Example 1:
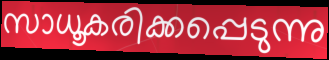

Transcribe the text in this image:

സാധൂകരിക്കപ്പെടുന്നു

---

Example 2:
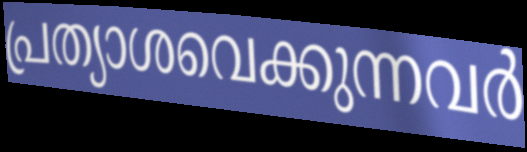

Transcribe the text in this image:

പ്രത്യാശവെക്കുന്നവർ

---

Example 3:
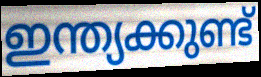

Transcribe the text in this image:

ഇന്ത്യക്കുണ്ട്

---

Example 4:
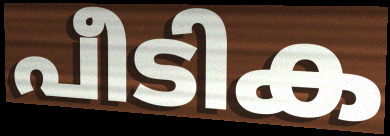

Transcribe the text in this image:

പീടിക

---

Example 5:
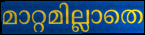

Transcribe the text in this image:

മാറ്റമില്ലാതെ